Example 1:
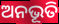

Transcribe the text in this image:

ଅନଭୂତି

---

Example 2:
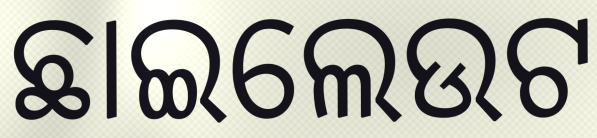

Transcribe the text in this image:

ଛାଇଲେଉଟ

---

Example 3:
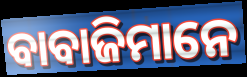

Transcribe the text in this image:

ବାବାଜିମାନେ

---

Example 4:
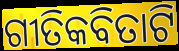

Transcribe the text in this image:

ଗୀତିକବିତାଟି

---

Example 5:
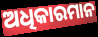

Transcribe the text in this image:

ଅଧିକାରମାନ